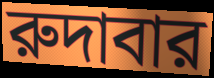
রুদাবার